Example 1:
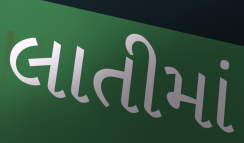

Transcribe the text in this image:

લાતીમાં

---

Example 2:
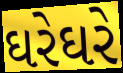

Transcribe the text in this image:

ઘરેઘરે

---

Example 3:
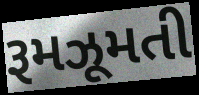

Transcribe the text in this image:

રૂમઝૂમતી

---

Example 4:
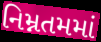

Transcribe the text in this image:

નિમ્નતમમાં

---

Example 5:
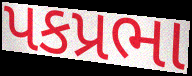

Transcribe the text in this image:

પકપ્રભા